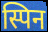
स्पिन